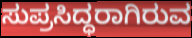
ಸುಪ್ರಸಿದ್ಧರಾಗಿರುವ